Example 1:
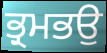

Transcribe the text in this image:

ਭ੍ਰਮਭਉ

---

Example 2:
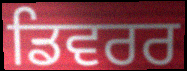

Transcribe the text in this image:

ਡਿਵਰਰ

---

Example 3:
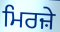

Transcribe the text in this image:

ਮਿਰਜ਼ੇ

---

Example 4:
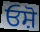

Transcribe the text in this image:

ਓਸ਼ੋ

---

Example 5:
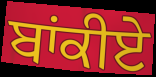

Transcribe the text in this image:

ਬਾਂਕੀਏ